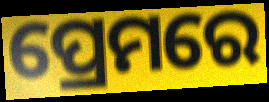
ପ୍ରେମରେ